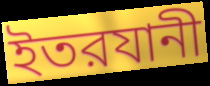
ইতরযানী